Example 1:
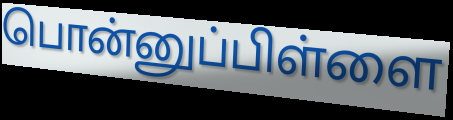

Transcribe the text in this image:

பொன்னுப்பிள்ளை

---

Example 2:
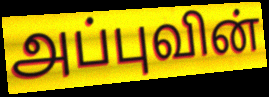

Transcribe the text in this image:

அப்புவின்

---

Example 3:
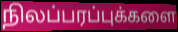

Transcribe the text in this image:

நிலப்பரப்புக்களை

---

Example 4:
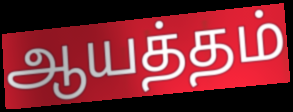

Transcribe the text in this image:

ஆயத்தம்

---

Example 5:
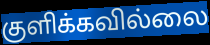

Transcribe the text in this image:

குளிக்கவில்லை